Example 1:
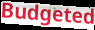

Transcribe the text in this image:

Budgeted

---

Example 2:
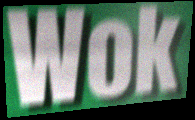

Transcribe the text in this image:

Wok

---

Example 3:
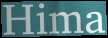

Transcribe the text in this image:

Hima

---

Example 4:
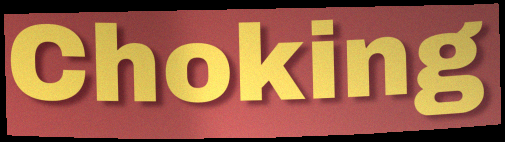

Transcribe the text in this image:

Choking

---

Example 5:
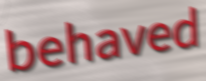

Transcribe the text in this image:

behaved